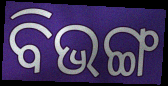
ବିଭଙ୍ଗ